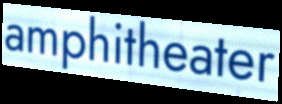
amphitheater